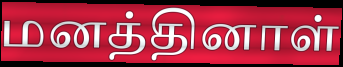
மனத்தினாள்